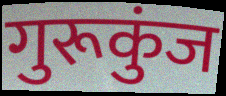
गुरूकुंज